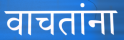
वाचतांना